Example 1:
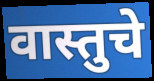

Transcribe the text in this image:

वास्तुचे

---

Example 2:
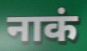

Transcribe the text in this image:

नाकं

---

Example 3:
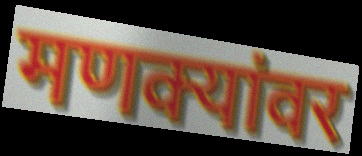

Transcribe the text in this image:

मणक्यांवर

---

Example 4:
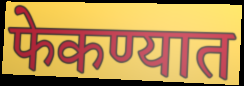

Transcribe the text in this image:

फेकण्यात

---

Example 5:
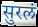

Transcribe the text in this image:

सुरलं